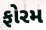
ફોરમ